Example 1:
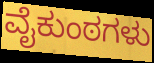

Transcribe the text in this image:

ವೈಕುಂಠಗಳು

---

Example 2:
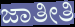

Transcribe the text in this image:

ಜಾತೀತಿ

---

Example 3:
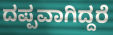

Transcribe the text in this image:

ದಪ್ಪವಾಗಿದ್ದರೆ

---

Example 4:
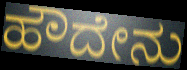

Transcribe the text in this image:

ಹೌದೇನು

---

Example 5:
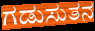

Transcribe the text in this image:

ಗಡುಸುತನ